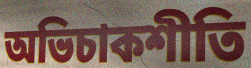
অভিচাকশীতি